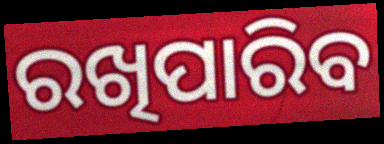
ରଖିପାରିବ